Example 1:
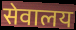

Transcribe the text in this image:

सेवालय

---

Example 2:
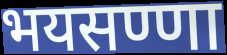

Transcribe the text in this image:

भयसण्णा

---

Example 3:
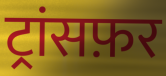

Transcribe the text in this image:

ट्रांसफ़र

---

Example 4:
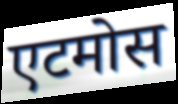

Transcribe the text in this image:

एटमोस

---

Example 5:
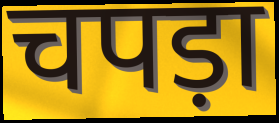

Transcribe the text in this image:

चपड़ा